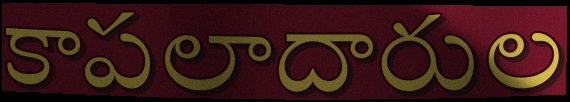
కాపలాదారుల